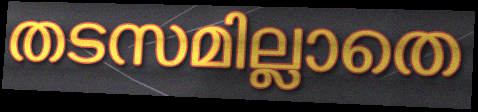
തടസമില്ലാതെ